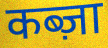
कब्ज़ा